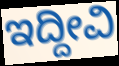
ಇದ್ದೀವಿ